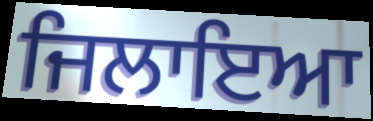
ਜਿਲਾਇਆ